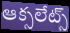
ఆక్సలేట్స్